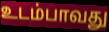
உடம்பாவது